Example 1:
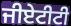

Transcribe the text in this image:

ਜੀਏਟੀਟੀ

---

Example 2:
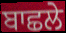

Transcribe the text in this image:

ਬਾਛਲੇ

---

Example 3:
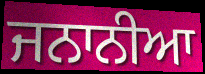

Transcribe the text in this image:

ਜਨਾਨੀਆ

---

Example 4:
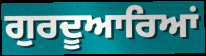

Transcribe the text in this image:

ਗੁਰਦੂਆਰਿਆਂ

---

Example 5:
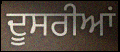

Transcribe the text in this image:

ਦੂਸਰੀਆਂ